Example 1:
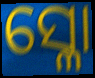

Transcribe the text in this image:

ସ୍ଳୋ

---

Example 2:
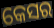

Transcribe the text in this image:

କେସର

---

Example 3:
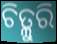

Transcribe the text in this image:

ଚିତ୍ଲୁରି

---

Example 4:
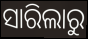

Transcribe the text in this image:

ସାରିଲାରୁ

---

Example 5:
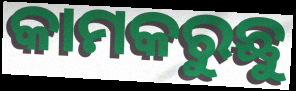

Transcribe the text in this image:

କାମକରୁଛୁ